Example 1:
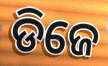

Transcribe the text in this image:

ଡିଜେ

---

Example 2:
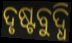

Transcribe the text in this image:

ଦୃଷ୍ଟବୁଦ୍ଧି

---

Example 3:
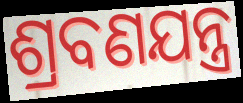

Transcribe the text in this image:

ଶ୍ରବଣଯନ୍ତ୍ର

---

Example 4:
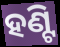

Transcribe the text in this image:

ହଣ୍ଟି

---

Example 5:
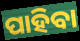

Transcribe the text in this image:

ପାହିବା